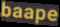
baape